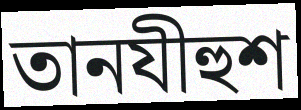
তানযীহুশ